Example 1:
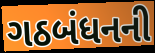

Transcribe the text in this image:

ગઠબંધનની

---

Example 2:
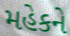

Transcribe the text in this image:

મહેકને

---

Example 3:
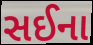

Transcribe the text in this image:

સઈના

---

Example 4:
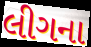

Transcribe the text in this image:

લીગના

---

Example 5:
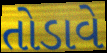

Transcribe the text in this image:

તોડાવે